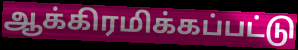
ஆக்கிரமிக்கப்பட்டு